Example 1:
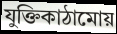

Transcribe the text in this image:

যুক্তিকাঠামোয়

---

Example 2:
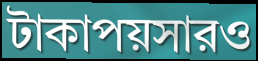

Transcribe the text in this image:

টাকাপয়সারও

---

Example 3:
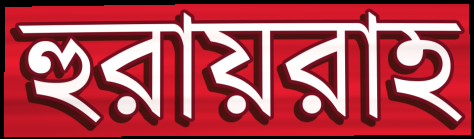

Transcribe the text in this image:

হুরায়রাহ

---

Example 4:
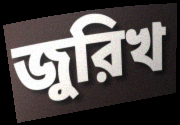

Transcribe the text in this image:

জুরিখ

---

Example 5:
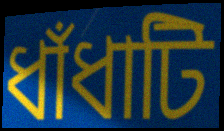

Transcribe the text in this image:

ধাঁধাটি